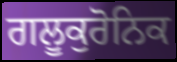
ਗਲੂਕੁਰੋਨਿਕ